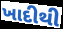
ખાદીથી